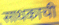
साधकाची